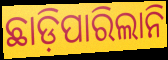
ଛାଡ଼ିପାରିଲାନି